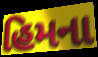
હિમના